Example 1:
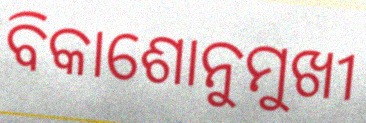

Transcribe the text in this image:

ବିକାଶୋନୁମୁଖୀ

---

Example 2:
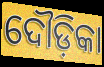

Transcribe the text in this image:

ଦୌଡ଼ିକା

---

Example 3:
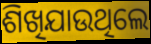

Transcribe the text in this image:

ଶିଖିଯାଉଥିଲେ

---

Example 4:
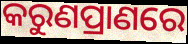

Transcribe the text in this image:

କରୁଣପ୍ରାଣରେ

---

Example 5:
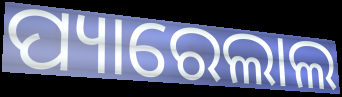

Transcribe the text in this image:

ପ୍ୟାରେଲାଲ